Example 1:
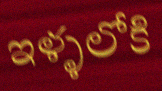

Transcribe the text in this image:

ఇళ్ళలోకి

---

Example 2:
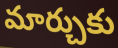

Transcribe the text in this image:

మార్చుకు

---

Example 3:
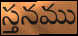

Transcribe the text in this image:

స్తనము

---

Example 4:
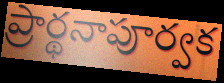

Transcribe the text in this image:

ప్రార్థనాపూర్వక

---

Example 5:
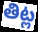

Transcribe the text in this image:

తిట్ల